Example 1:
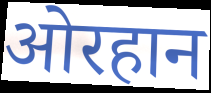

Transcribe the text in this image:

ओरहान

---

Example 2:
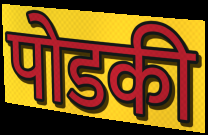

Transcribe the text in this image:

पोडकी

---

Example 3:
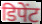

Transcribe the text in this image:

डिपेंट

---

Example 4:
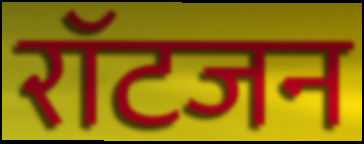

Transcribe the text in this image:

रॉटजन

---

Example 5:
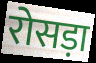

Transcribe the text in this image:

रोसड़ा